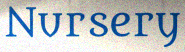
Nursery